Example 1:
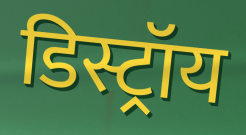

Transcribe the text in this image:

डिस्ट्रॉय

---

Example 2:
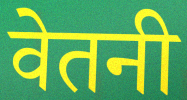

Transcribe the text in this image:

वेतनी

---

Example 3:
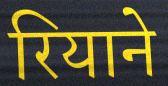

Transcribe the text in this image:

रियाने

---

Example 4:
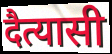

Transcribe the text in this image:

दैत्यासी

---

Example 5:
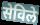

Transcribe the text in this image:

सेविले